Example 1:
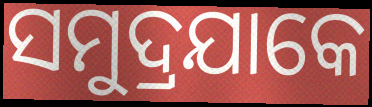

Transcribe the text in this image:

ସମୁଦ୍ରଯାକେ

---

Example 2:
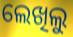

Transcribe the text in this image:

ଲେଖିଲୁ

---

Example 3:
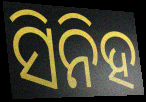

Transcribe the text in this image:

ସିନିହ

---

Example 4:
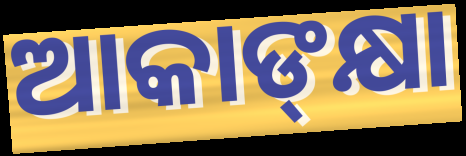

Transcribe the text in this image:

ଆକାଙ୍‍କ୍ଷା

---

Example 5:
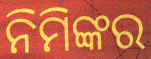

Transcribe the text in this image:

ନିମିଙ୍କର